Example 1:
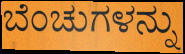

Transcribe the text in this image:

ಬೆಂಚುಗಳನ್ನು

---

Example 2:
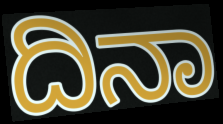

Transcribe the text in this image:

ದಿನಾ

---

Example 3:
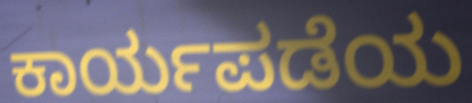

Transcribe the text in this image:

ಕಾರ್ಯಪಡೆಯ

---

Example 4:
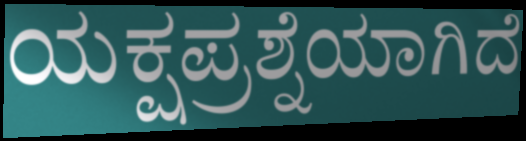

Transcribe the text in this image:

ಯಕ್ಷಪ್ರಶ್ನೆಯಾಗಿದೆ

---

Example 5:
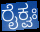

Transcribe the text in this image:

ರೈಕ್ವಃ